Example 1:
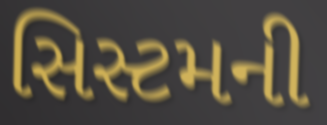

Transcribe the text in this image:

સિસ્ટમની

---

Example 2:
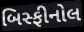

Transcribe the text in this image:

બિસ્ફીનોલ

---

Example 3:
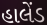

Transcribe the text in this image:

હાલેંડ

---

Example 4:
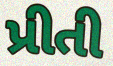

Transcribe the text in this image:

પ્રીતી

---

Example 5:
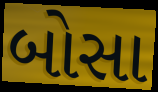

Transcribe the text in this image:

બોસા